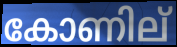
കോണില്